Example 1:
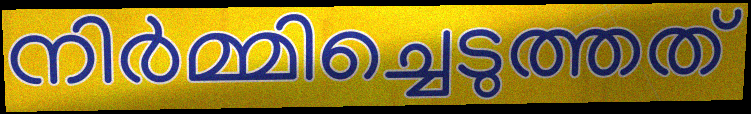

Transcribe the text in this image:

നിർമ്മിച്ചെടുത്തത്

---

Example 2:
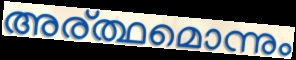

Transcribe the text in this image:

അര്ത്ഥമൊന്നും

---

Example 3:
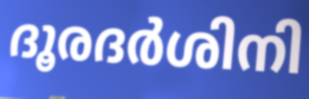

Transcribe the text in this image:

ദൂരദർശിനി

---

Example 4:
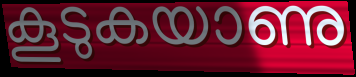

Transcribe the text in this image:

കൂടുകയാണു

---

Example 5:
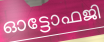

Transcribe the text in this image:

ഓട്ടോഫജി